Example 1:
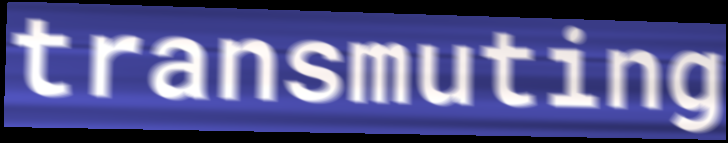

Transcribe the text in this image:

transmuting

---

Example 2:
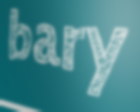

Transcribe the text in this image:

bary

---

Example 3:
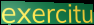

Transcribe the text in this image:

exercitu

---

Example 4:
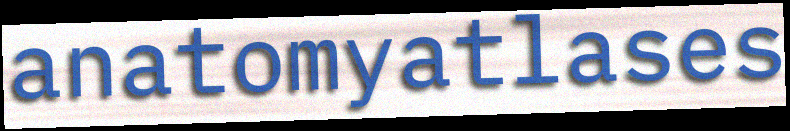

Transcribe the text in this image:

anatomyatlases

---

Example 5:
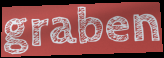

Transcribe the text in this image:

graben